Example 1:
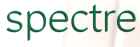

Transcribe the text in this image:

spectre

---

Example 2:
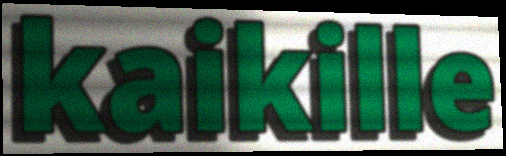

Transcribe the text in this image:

kaikille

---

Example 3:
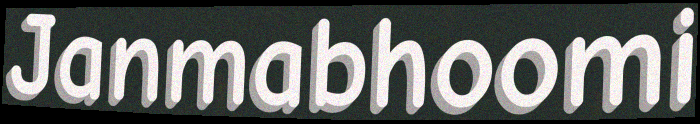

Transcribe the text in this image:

Janmabhoomi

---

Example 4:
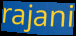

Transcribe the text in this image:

rajani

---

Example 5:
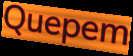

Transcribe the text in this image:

Quepem